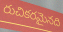
రుచికరమైనది